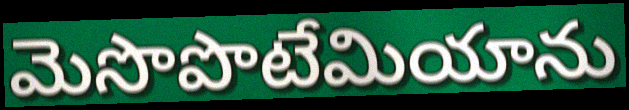
మెసొపొటేమియాను